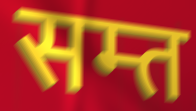
सम्त